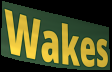
Wakes